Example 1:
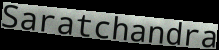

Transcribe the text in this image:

Saratchandra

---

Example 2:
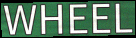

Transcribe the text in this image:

WHEEL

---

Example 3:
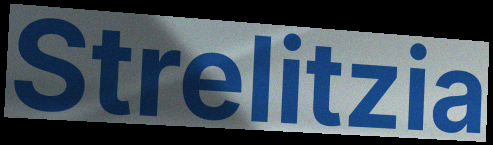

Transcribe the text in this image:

Strelitzia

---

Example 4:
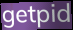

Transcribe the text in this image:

getpid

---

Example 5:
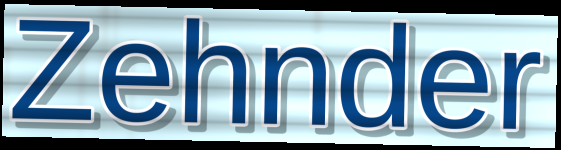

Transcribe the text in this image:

Zehnder